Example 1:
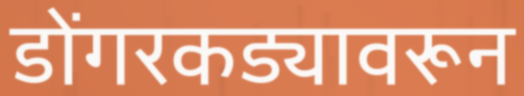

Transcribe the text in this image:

डोंगरकड्यावरून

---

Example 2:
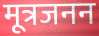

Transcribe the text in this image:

मूत्रजनन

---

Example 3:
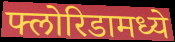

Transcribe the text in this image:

फ्लोरिडामध्ये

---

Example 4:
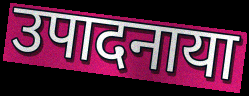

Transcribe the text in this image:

उपादनाया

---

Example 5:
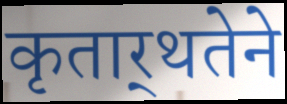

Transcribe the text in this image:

कृतार्थतेने